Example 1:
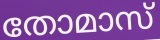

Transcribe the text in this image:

തോമാസ്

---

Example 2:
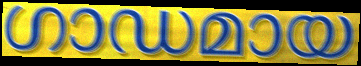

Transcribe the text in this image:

ഗാഡമായ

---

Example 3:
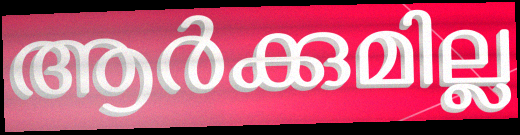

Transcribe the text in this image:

ആർക്കുമില്ല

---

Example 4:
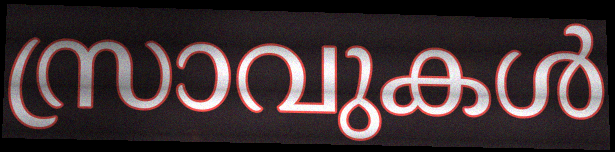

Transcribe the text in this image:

സ്രാവുകൾ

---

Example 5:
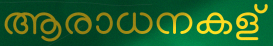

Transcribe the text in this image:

ആരാധനകള്